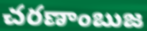
చరణాంబుజ